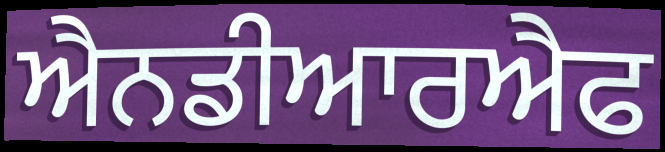
ਐਨਡੀਆਰਐਫ